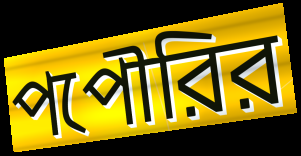
পপৌরির